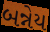
બન્નેય